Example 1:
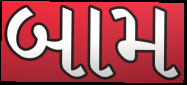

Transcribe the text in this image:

બામ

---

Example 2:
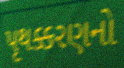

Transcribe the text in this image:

પૃથક્કરણનો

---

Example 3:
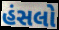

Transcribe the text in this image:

હંસલો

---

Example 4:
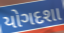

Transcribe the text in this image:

યોગદશા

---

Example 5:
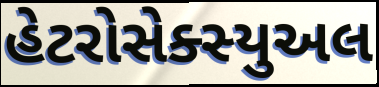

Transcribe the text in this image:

હેટરોસેક્સ્યુઅલ